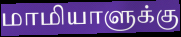
மாமியாளுக்கு